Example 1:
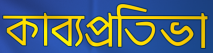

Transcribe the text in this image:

কাব্যপ্রতিভা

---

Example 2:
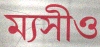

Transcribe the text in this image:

ম্যসীও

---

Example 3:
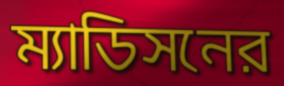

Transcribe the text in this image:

ম্যাডিসনের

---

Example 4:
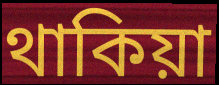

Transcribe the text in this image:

থাকিয়া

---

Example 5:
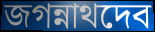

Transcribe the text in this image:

জগন্নাথদেব